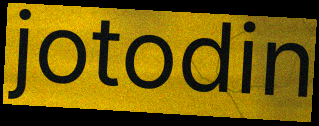
jotodin